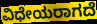
ವಿಧೇಯರಾಗದೆ